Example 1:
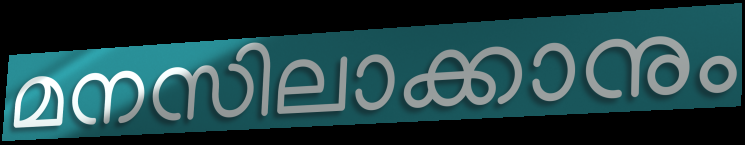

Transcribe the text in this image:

മനസിലാക്കാനും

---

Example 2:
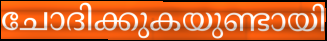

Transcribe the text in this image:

ചോദിക്കുകയുണ്ടായി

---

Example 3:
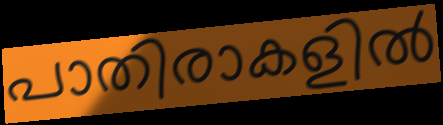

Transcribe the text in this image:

പാതിരാകളിൽ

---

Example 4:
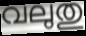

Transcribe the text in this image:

വലുതു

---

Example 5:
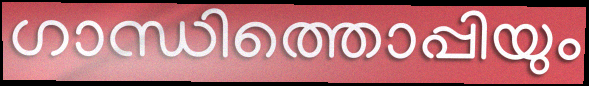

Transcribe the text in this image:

ഗാന്ധിത്തൊപ്പിയും